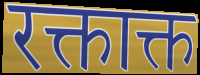
रक्ताक्त